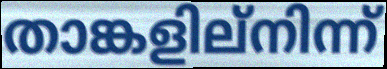
താങ്കളില്നിന്ന്